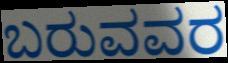
ಬರುವವರ